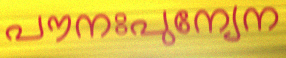
പൗനഃപുന്യേന